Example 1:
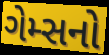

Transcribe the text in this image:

ગેમ્સનો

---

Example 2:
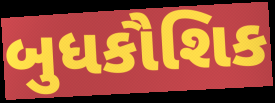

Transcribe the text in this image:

બુધકૌશિક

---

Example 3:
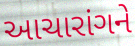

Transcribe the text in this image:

આચારાંગને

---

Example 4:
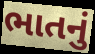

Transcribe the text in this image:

ભાતનું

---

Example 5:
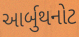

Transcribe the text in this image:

આર્બુથનોટ